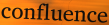
confluence